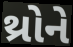
થ્રોને